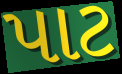
પાટ